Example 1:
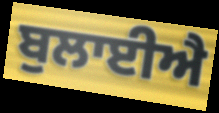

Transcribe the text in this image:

ਬੁਲਾਈਐ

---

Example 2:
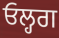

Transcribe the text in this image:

ਓਲ੍ਹਗ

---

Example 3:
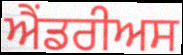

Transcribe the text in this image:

ਐਂਡਰੀਅਸ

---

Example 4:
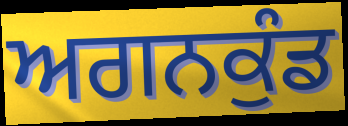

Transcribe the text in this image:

ਅਗਨਕੁੰਡ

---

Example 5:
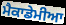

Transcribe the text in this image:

ਮੈਕਾਡੇਮੀਆ